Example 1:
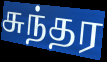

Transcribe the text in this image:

சுந்தர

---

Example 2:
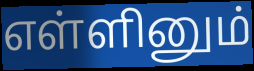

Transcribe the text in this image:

எள்ளினும்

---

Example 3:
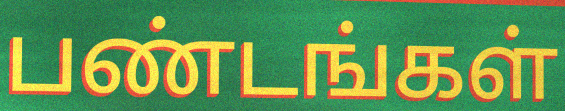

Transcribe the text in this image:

பண்டங்கள்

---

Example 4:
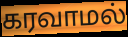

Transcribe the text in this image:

கரவாமல்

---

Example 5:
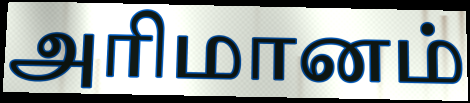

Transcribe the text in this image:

அரிமானம்